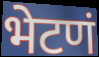
भेटणं